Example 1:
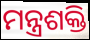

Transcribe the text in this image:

ମନ୍ତ୍ରଶକ୍ତି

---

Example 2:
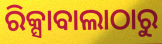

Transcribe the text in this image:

ରିକ୍ସାବାଲାଠାରୁ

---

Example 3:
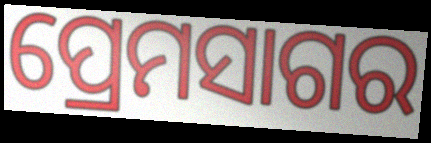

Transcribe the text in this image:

ପ୍ରେମସାଗର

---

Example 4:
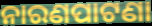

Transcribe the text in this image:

ନାରଣପାଟଣା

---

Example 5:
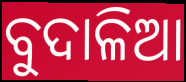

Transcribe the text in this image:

ବୁଦାଳିଆ